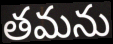
తమను